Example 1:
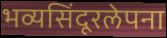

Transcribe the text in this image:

भव्यसिंदूरलेपना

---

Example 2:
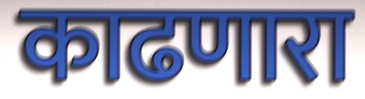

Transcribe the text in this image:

काढणारा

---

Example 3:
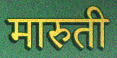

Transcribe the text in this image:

मारुती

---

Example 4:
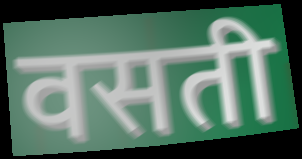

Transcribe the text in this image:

वसती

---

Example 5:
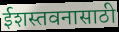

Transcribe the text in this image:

ईशस्तवनासाठी